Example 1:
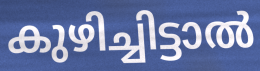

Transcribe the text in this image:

കുഴിച്ചിട്ടാൽ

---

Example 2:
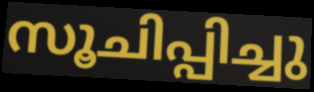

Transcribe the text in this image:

സൂചിപ്പിച്ചു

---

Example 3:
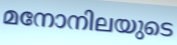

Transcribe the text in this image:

മനോനിലയുടെ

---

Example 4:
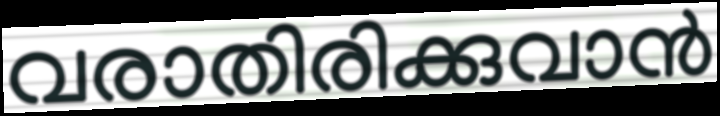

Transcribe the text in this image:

വരാതിരിക്കുവാൻ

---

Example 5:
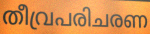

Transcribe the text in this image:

തീവ്രപരിചരണ